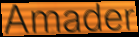
Amader